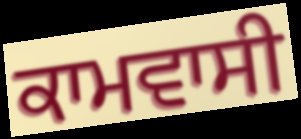
ਕਾਮਵਾਸੀ